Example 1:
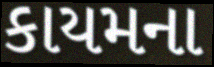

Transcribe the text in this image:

કાયમના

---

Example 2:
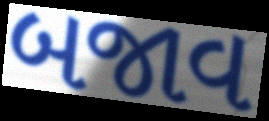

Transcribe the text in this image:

બજાવ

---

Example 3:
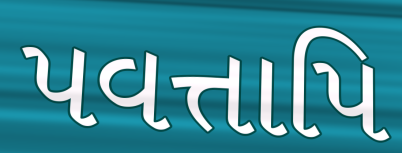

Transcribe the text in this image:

પવત્તાપિ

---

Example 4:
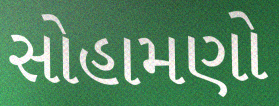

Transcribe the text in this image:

સોહામણો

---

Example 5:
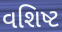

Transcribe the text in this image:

વશિષ્ટ